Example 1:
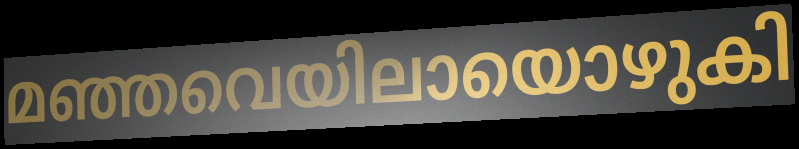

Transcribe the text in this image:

മഞ്ഞവെയിലായൊഴുകി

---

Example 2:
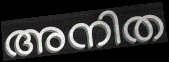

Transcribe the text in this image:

അനിത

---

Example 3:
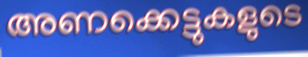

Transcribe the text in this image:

അണക്കെട്ടുകളുടെ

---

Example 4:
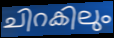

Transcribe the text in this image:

ചിറകിലും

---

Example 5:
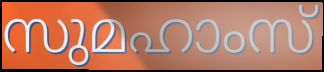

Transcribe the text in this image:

സുമഹാംസ്